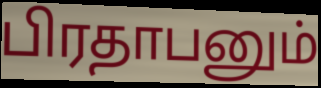
பிரதாபனும்